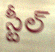
స్టీల్